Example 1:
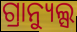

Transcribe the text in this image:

ଗ୍ରାନ୍ୟୁଲ୍ସ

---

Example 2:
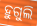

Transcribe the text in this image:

ହୁଗୁଲି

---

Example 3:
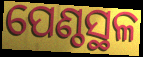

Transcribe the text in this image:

ପେଣ୍ଠସ୍ଥଳ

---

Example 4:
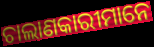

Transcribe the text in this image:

ଚାଲାଣକାରୀମାନେ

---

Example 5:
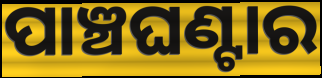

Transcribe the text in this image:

ପାଞ୍ଚଘଣ୍ଟାର